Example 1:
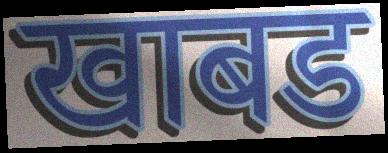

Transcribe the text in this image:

खाबड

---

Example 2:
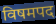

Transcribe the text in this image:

विषमपद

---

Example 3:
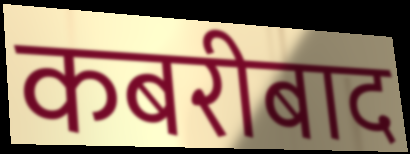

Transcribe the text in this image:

कबरीबाद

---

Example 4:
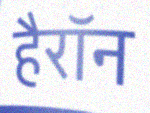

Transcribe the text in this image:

हैरॉन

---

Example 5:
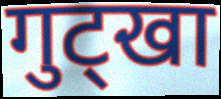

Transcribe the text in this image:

गुट्खा